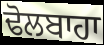
ਢੋਲਬਾਹਾ